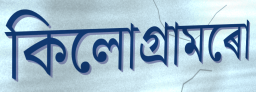
কিলোগ্ৰামৰো